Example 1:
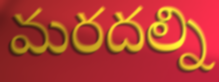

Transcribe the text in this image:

మరదల్ని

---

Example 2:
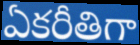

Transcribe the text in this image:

ఏకరీతిగా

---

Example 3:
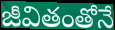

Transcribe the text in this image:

జీవితంతోనే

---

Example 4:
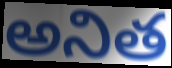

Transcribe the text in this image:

అనిత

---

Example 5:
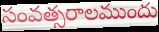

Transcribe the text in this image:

సంవత్సరాలముందు